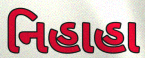
નિહાહા